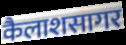
कैलाशसागर